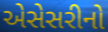
એસેસરીનો